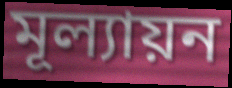
মূল্যায়ন